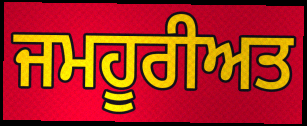
ਜਮਹੂਰੀਅਤ